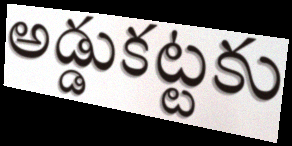
అడ్డుకట్టకు